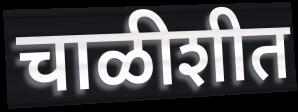
चाळीशीत